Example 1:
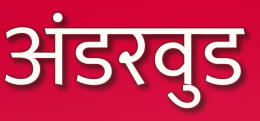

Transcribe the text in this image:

अंडरवुड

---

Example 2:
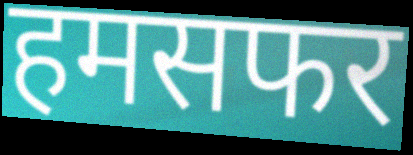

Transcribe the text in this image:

हमसफर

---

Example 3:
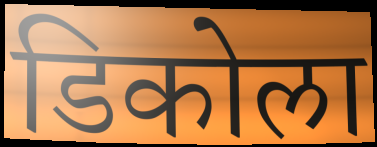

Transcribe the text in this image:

डिकोला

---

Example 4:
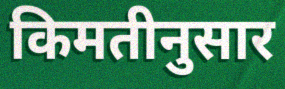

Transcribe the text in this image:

किमतीनुसार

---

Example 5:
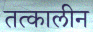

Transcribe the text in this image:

तत्कालीन